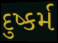
દુષ્કર્મ